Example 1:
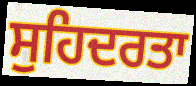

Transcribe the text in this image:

ਸੁਹਿਦਰਤਾ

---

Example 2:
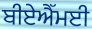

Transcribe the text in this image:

ਬੀਏਐੱਮਈ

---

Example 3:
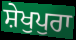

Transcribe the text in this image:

ਸ਼ੇਖੁਪੁਰਾ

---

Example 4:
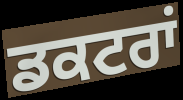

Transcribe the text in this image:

ਡਕਟਰਾਂ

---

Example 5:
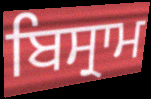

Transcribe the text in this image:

ਬਿਸ੍ਰਾਮ